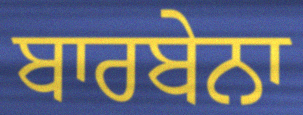
ਬਾਰਬੇਨਾ